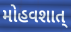
મોહવશાત્